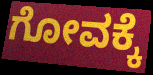
ಗೋವಕ್ಕೆ